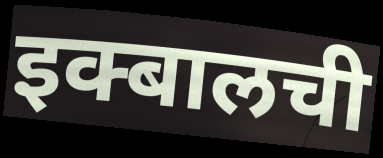
इक्बालची